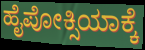
ಹೈಪೋಕ್ಸಿಯಾಕ್ಕೆ